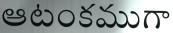
ఆటంకముగా